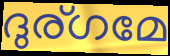
ദുര്ഗമേ